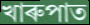
খাৰুপাত